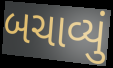
બચાવ્યું